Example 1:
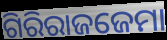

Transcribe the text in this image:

ଗିରିରାଜଜେମା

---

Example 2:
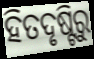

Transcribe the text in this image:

ହିତଦୃଷ୍ଟିରୁ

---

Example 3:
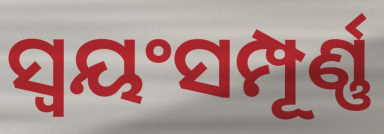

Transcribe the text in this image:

ସ୍ବୟଂସମ୍ପୂର୍ଣ୍ଣ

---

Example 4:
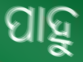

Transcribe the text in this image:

ପାହୁ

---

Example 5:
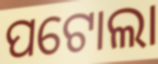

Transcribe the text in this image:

ପଟୋଲା